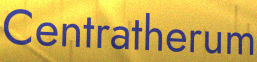
Centratherum